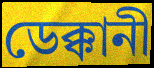
ডেক্কানী